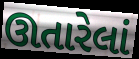
ઊતારેલાં